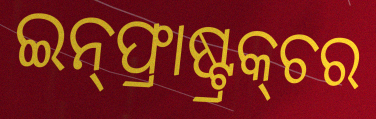
ଇନ୍‌ଫ୍ରାଷ୍ଟ୍ରକ୍‌ଚର